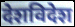
देशविदेश